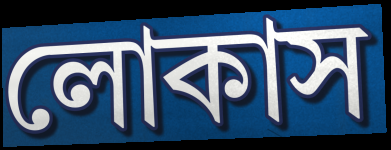
লোকাস